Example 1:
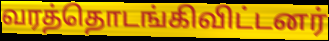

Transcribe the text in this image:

வரத்தொடங்கிவிட்டனர்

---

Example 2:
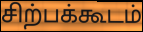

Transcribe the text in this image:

சிற்பக்கூடம்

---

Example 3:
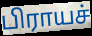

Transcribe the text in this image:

பிராயச்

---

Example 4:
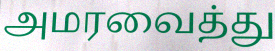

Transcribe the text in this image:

அமரவைத்து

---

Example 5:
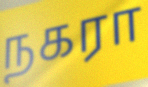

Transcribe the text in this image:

நகரா